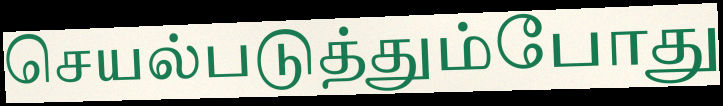
செயல்படுத்தும்போது